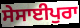
ਸੇਸਾਈਪੁਰਾ